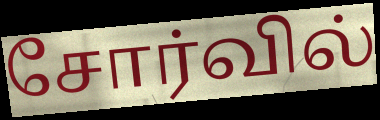
சோர்வில்